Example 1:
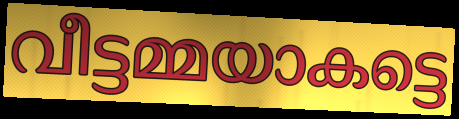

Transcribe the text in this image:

വീട്ടമ്മയാകട്ടെ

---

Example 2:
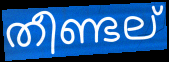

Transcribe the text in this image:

തീണ്ടല്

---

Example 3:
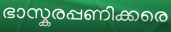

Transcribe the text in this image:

ഭാസ്കരപ്പണിക്കരെ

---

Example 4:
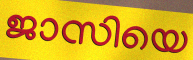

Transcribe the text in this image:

ജാസിയെ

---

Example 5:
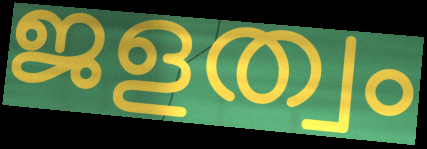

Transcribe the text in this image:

ജളത്വം